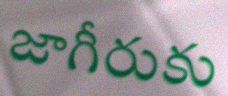
జాగీరుకు